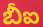
బీఐ